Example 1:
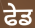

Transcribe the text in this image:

ਫੇਡ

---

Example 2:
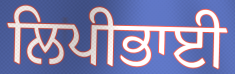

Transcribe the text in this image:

ਲਿਪੀਭਾਈ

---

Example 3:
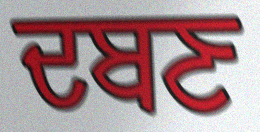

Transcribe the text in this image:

ਦਬਣ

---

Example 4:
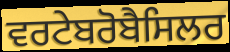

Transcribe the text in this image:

ਵਰਟੇਬਰੋਬੈਸਿਲਰ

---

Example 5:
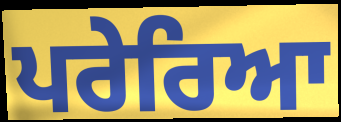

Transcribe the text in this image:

ਪਰੇਰਿਆ